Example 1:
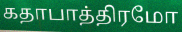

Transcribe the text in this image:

கதாபாத்திரமோ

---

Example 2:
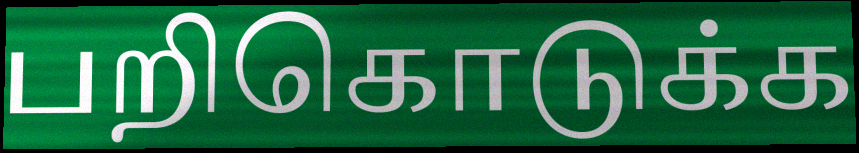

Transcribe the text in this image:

பறிகொடுக்க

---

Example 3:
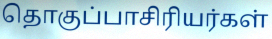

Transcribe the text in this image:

தொகுப்பாசிரியர்கள்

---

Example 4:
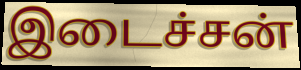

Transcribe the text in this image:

இடைச்சன்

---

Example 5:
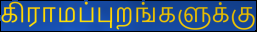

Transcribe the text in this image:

கிராமப்புறங்களுக்கு